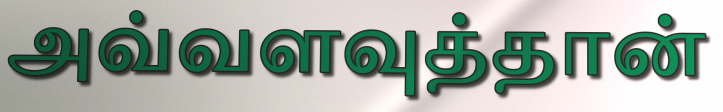
அவ்வளவுத்தான்